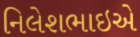
નિલેશભાઇએ